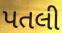
પતલી